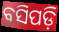
ବସିପଡ଼ି